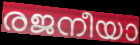
രജനീയാ